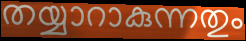
തയ്യാറാകുന്നതും